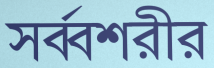
সর্ব্বশরীর